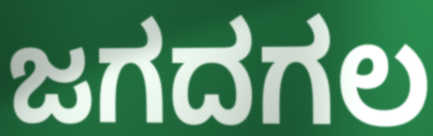
ಜಗದಗಲ